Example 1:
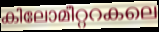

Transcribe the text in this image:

കിലോമീറ്ററകലെ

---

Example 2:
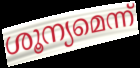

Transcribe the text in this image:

ശൂന്യമെന്ന്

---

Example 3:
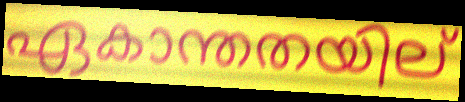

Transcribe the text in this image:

ഏകാന്തതയില്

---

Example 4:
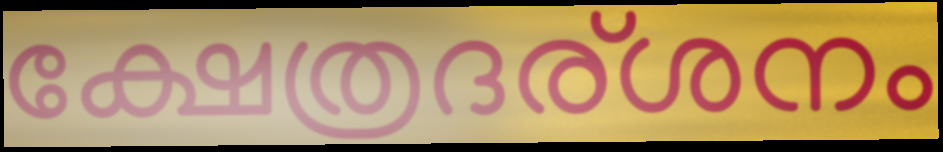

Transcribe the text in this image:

ക്ഷേത്രദര്ശനം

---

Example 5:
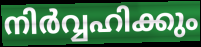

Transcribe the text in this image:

നിർവ്വഹിക്കും